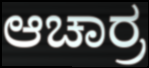
ಆಚಾರ್ರ